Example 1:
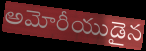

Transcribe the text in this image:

అమోరీయుడైన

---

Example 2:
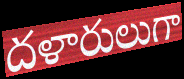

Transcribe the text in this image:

దళారులుగా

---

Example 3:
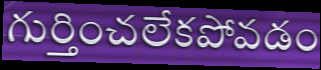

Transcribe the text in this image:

గుర్తించలేకపోవడం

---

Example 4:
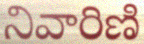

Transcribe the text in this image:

నివారిణి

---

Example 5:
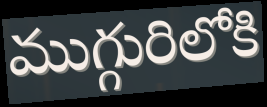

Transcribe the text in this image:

ముగ్గురిలోకి